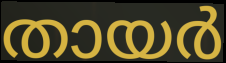
തായർ